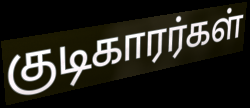
குடிகாரர்கள்